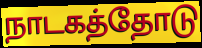
நாடகத்தோடு